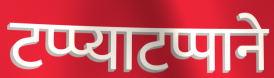
टप्प्याटप्पाने